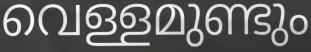
വെള്ളമുണ്ടും